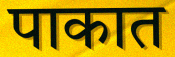
पाकात